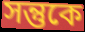
সন্তুকে